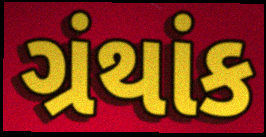
ગ્રંથાંક